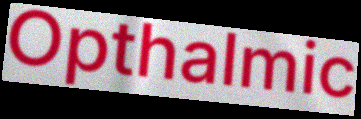
Opthalmic